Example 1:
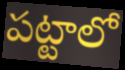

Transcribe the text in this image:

పట్టాలో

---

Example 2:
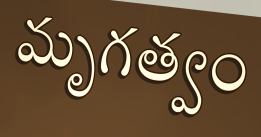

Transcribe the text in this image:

మృగత్వం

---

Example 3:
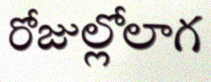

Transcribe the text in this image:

రోజుల్లోలాగ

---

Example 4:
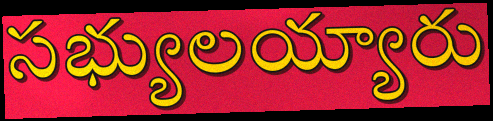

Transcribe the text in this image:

సభ్యులయ్యారు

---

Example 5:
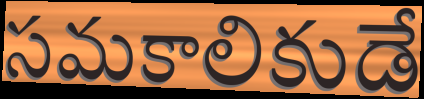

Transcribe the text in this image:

సమకాలికుడే